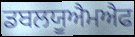
ਡਬਲਯੂਐਮਐਫ